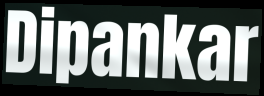
Dipankar